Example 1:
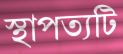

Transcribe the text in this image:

স্থাপত্যটি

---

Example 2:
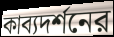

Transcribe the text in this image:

কাব্যদর্শনের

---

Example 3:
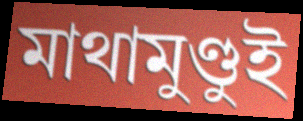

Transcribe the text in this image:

মাথামুণ্ডুই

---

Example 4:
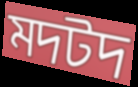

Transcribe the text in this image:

মদটদ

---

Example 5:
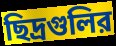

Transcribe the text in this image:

ছিদ্রগুলির